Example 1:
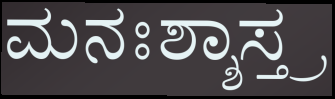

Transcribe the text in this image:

ಮನಃಶ್ಶಾಸ್ತ್ರ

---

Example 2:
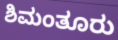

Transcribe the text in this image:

ಶಿಮಂತೂರು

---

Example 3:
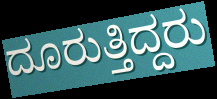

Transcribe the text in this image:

ದೂರುತ್ತಿದ್ದರು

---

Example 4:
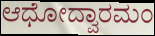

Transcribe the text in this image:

ಆಧೋದ್ವಾರಮಂ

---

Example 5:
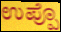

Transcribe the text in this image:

ಉಪ್ಪೊ